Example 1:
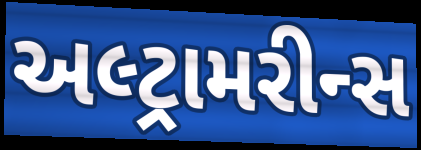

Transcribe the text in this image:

અલ્ટ્રામરીન્સ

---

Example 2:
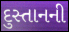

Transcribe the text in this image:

દુસ્તાનની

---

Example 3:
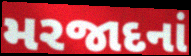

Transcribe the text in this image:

મરજાદનાં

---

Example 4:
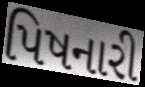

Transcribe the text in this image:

પિષનારી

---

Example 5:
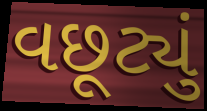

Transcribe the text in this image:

વછૂટ્યું